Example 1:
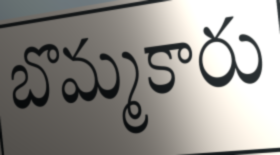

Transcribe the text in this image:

బొమ్మకారు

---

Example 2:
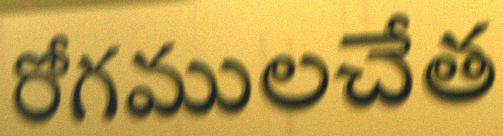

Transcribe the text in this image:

రోగములచేత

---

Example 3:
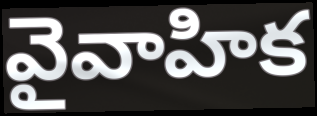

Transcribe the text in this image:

వైవాహిక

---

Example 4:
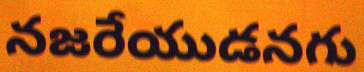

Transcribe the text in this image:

నజరేయుడనగు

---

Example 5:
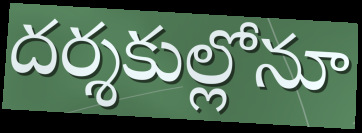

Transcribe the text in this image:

దర్శకుల్లోనూ